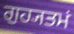
ਗੁਹ੍ਯਤਮਂ